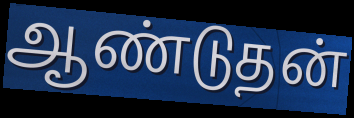
ஆண்டுதன்